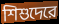
শিশুদেরে